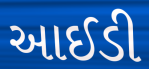
આઈડી